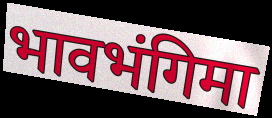
भावभंगिमा